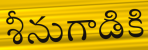
శీనుగాడికి